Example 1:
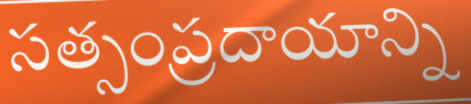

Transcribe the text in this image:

సత్సంప్రదాయాన్ని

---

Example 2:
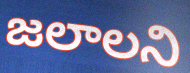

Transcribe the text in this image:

జలాలని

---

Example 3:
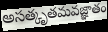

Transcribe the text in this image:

అసత్కృతమవజ్ఞాతం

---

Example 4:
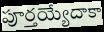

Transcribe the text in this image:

పూర్తయ్యేదాకా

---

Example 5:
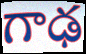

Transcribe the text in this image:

గాఢ